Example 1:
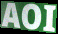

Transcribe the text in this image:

AOI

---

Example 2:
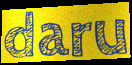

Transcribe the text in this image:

daru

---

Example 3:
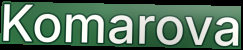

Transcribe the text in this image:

Komarova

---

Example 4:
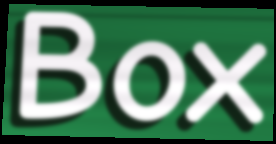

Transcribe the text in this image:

Box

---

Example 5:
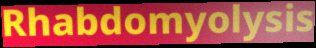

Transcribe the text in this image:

Rhabdomyolysis